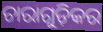
ଚାରାଗୁଡ଼ିକର